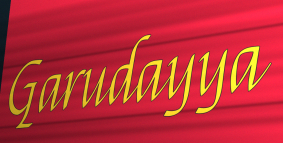
Garudayya